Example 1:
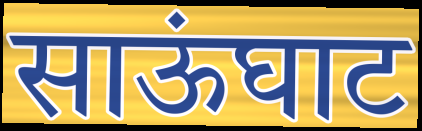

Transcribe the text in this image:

साऊंघाट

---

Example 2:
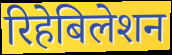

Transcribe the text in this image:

रिहेबिलेशन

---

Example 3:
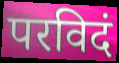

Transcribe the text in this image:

परविदं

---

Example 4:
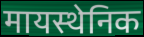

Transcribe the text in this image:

मायस्थेनिक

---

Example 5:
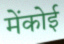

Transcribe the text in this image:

मेंकोई